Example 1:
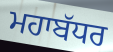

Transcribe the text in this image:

ਮਹਾਬੱਧਰ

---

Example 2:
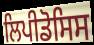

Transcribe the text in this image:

ਲਿਪੀਡੋਸਿਸ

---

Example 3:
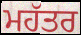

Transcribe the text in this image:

ਮਹੱਤਰ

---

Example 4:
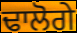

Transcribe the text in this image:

ਢਾਲੋਗੇ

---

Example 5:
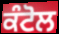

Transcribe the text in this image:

ਕੰਟੋਲ